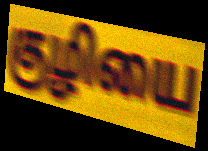
குழியை